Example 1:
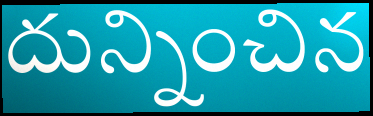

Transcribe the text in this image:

దున్నించిన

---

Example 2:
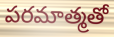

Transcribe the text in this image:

పరమాత్మతో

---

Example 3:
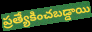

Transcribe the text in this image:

ప్రత్యేకించబడ్డాయి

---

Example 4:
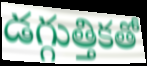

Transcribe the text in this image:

డగ్గుత్తికతో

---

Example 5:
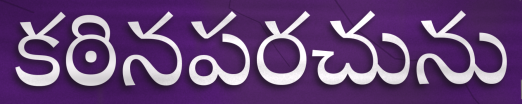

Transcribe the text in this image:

కఠినపరచును